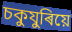
চকুযুৰিয়ে